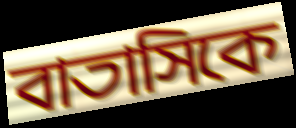
বাতাসিকে